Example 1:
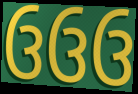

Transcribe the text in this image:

ઉઉઉ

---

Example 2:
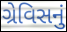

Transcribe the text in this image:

ગ્રેવિસનું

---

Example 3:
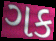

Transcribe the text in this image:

ગક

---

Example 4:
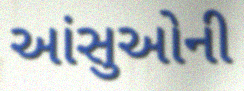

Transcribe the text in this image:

આંસુઓની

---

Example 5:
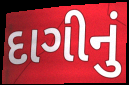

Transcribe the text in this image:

દાગીનું